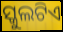
ସ୍କୁଲଟିଏ